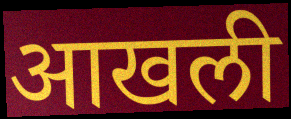
आखली